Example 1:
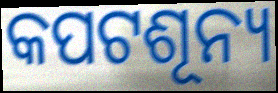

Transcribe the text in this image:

କପଟଶୂନ୍ୟ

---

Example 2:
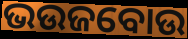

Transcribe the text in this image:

ଭଉଜବୋଉ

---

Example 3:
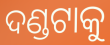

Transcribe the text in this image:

ଦଣ୍ଡଟାକୁ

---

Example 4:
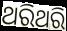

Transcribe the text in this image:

ଥରିଥରି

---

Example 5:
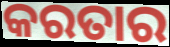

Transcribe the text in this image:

କରତାର